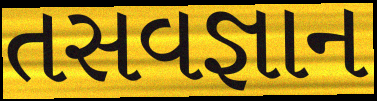
તસવજ્ઞાન